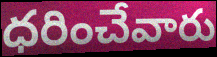
ధరించేవారు